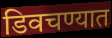
डिवचण्यात